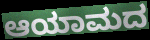
ಆಯಾಮದ